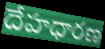
దేహధారణ